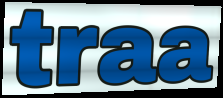
traa